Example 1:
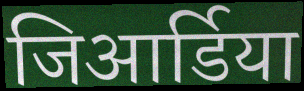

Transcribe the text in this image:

जिआर्डिया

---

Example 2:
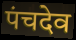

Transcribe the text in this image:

पंचदेव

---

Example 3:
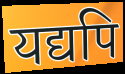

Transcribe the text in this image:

यद्यपि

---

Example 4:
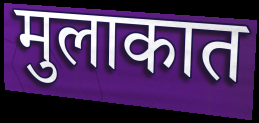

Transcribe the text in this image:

मुलाकात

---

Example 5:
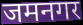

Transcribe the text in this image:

जमनगर